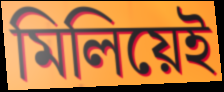
মিলিয়েই